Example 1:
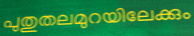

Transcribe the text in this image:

പുതുതലമുറയിലേക്കും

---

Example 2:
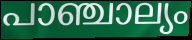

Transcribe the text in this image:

പാഞ്ചാല്യം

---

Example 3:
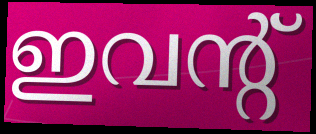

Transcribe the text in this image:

ഇവന്റ്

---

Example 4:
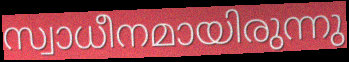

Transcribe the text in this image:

സ്വാധീനമായിരുന്നു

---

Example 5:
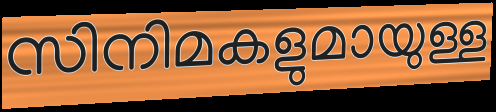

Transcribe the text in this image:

സിനിമകളുമായുള്ള